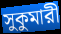
সুকুমারী